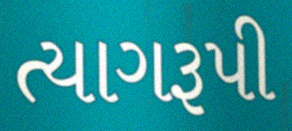
ત્યાગરૂપી